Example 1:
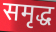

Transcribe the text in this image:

समृद्ध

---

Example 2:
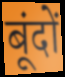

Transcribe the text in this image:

बूंदों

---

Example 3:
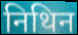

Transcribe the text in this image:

निथिन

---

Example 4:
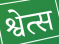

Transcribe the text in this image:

श्वेत्स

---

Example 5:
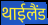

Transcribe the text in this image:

थाईलैंड